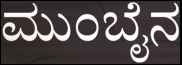
ಮುಂಬೈನ